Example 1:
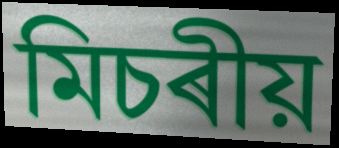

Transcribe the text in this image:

মিচৰীয়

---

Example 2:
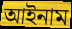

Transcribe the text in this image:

আইনাম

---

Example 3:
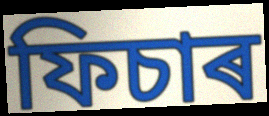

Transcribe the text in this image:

ফিচাৰ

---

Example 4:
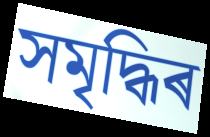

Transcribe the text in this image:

সমৃদ্ধিৰ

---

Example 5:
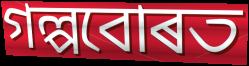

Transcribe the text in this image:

গল্পবোৰত